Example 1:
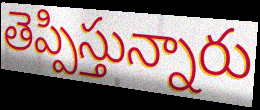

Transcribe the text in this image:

తెప్పిస్తున్నారు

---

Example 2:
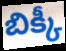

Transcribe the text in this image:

బిక్కీ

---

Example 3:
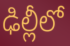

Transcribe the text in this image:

ఢిల్లీలో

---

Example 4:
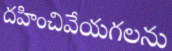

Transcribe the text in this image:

దహించివేయగలను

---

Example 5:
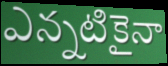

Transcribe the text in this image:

ఎన్నటికైనా